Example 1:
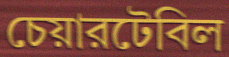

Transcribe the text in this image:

চেয়ারটেবিল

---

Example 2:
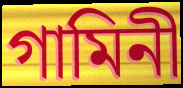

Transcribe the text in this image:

গামিনী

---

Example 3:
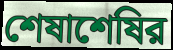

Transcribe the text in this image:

শেষাশেষির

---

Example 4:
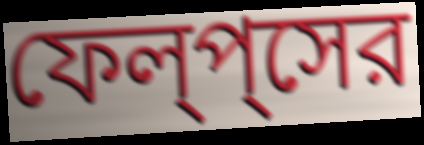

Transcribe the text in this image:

ফেল্‌প্‌সের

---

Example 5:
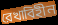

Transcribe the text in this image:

রেখাবিহীন